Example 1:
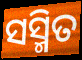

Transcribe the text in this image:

ସସ୍ମିତ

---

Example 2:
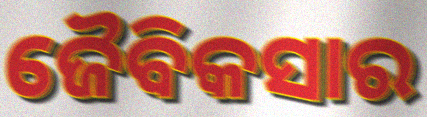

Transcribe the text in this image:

ଜୈବିକସାର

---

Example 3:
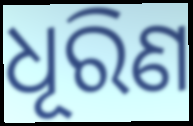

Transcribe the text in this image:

ଧୂରିଣ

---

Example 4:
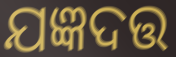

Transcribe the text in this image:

ଯଜ୍ଞଦତ୍ତ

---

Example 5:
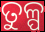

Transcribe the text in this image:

ତୁଳ୍ପ